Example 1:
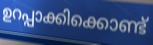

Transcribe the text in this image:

ഉറപ്പാക്കിക്കൊണ്ട്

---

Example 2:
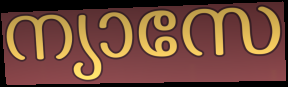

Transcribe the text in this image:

ന്യാസേ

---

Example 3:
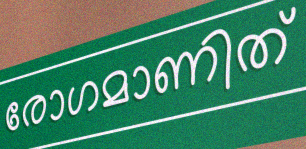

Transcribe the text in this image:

രോഗമാണിത്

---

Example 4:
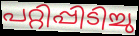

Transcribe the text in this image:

പറ്റിപ്പിടിച്ചു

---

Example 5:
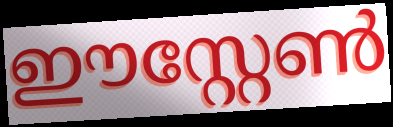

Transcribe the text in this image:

ഈസ്റ്റേൺ